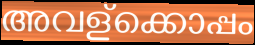
അവള്ക്കൊപ്പം